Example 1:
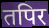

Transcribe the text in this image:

तपिर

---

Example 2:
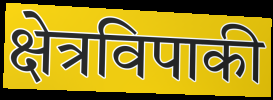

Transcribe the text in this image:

क्षेत्रविपाकी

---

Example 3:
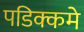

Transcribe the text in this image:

पडिक्कमे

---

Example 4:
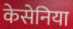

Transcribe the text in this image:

केसेनिया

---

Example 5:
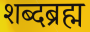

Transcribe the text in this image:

शब्दब्रह्म